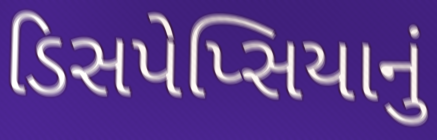
ડિસપેપ્સિયાનું